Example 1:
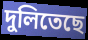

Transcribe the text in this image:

দুলিতেছে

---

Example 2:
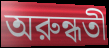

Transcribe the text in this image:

অরুন্ধতী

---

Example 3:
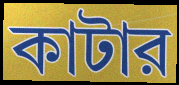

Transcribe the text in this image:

কাটার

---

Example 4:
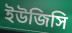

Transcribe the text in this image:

ইউজিসি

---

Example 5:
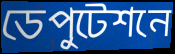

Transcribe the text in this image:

ডেপুটেশনে